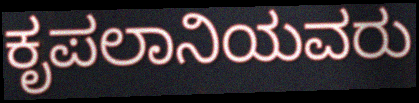
ಕೃಪಲಾನಿಯವರು